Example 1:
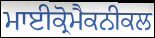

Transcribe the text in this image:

ਮਾਈਕ੍ਰੋਮੈਕਨੀਕਲ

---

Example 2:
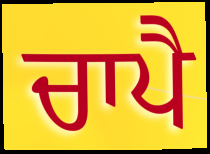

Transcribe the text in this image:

ਚਾਪੈ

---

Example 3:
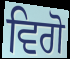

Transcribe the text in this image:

ਵਿਗੋ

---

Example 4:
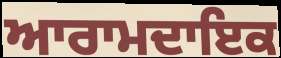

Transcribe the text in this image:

ਆਰਾਮਦਾਇਕ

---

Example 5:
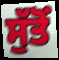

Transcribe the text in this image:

ਸੁੱਤੋਂ